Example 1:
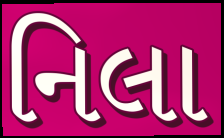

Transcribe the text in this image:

નિલા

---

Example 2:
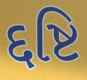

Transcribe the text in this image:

દ્દષ્ટિ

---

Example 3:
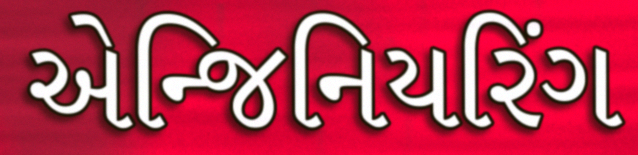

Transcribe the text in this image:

એન્જિનિયરિંગ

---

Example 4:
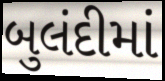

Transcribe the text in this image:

બુલંદીમાં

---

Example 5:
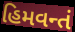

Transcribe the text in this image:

હિમવન્તં